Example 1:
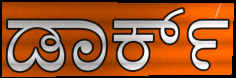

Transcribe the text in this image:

ಡಾರ್ಕ್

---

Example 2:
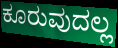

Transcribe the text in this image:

ಕೂರುವುದಲ್ಲ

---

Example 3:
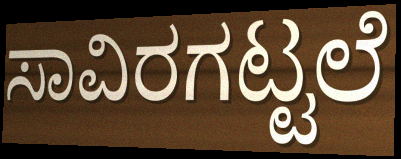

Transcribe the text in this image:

ಸಾವಿರಗಟ್ಟಲೆ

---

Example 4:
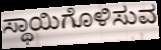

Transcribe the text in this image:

ಸ್ಥಾಯಿಗೊಳಿಸುವ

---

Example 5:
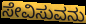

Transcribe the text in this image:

ಸೇವಿಸುವನು